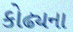
કોઢ્યના